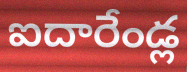
ఐదారేండ్ల